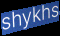
shykhs